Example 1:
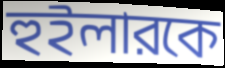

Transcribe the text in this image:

হুইলারকে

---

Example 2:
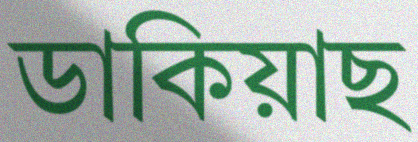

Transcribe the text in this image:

ডাকিয়াছ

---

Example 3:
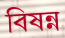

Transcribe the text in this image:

বিষন্ন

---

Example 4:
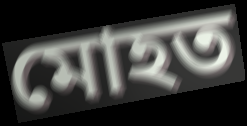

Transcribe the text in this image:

মোহত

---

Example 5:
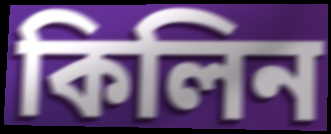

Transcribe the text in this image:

কিলিন